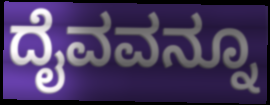
ದೈವವನ್ನೂ